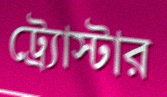
ট্র্যোস্টার